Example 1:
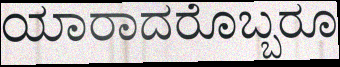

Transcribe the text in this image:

ಯಾರಾದರೊಬ್ಬರೂ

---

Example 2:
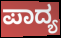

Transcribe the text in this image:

ಪಾದ್ಯ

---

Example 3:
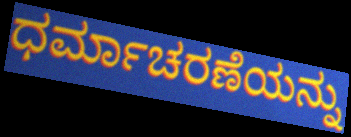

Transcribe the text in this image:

ಧರ್ಮಾಚರಣೆಯನ್ನು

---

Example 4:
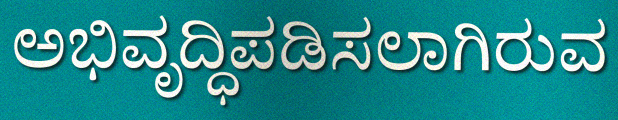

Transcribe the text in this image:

ಅಭಿವೃದ್ಧಿಪಡಿಸಲಾಗಿರುವ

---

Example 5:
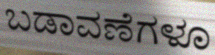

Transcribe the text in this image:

ಬಡಾವಣೆಗಳೂ